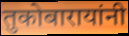
तुकोबारायांनी